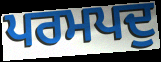
ਪਰਮਪਦੁ